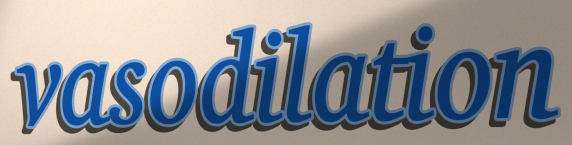
vasodilation